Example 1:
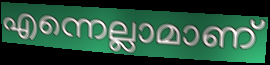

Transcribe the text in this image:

എന്നെല്ലാമാണ്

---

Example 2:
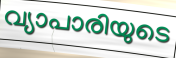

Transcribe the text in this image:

വ്യാപാരിയുടെ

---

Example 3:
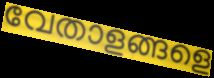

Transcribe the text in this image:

വേതാളങ്ങളെ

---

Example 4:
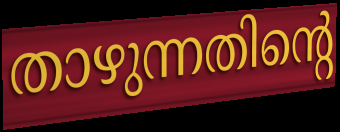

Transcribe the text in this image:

താഴുന്നതിന്റെ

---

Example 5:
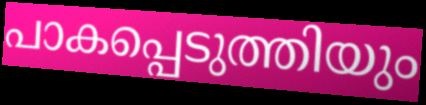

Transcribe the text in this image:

പാകപ്പെടുത്തിയും